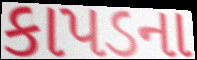
કાપડના